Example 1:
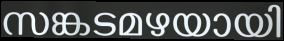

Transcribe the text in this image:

സങ്കടമഴയായി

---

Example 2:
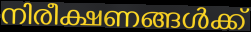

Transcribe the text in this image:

നിരീക്ഷണങ്ങൾക്ക്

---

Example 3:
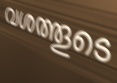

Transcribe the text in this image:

വശത്തൂടെ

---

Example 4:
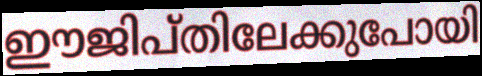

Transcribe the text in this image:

ഈജിപ്തിലേക്കുപോയി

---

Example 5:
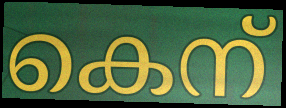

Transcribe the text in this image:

കെന്